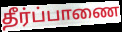
தீர்ப்பாணை